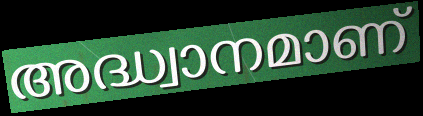
അദ്ധ്വാനമാണ്